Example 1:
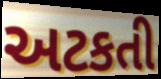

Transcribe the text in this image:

અટકતી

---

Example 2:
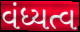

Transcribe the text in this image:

વંધ્યત્વ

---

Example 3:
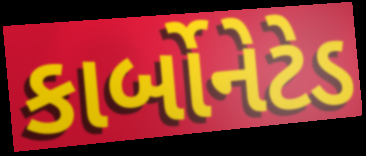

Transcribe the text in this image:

કાર્બોનેટેડ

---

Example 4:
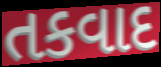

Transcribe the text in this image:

તકવાદ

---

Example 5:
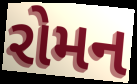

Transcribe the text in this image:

રોમન